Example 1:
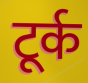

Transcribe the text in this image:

टूर्क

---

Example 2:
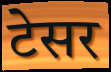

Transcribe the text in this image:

टेसर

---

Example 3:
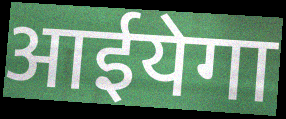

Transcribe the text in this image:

आईयेगा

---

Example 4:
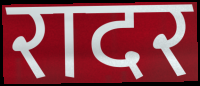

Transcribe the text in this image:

रादर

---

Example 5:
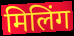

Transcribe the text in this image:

मिलिंग